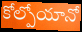
కోల్పోయానో